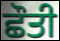
ਛੌਤੀ